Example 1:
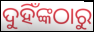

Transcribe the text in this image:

ଦୁହିଁଙ୍କଠାରୁ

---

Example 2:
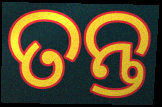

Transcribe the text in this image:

ତନ୍ତ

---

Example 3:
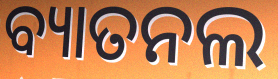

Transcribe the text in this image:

ବ୍ୟାତନଲ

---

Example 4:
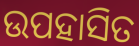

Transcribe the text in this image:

ଉପହାସିତ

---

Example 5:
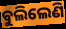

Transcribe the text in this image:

ବୁଲିଲେଣି